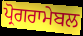
ਪ੍ਰੋਗਰਾਮੇਬਲ